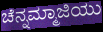
ಚೆನ್ನಮ್ಮಾಜಿಯು